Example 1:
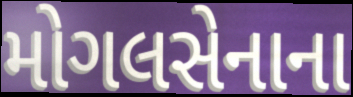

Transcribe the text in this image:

મોગલસેનાના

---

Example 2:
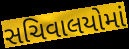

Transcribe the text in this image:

સચિવાલયોમાં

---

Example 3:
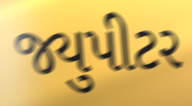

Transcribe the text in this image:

જ્યુપીટર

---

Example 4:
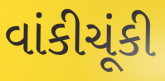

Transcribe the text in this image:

વાંકીચૂંકી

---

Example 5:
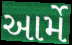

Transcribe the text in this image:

આર્મે